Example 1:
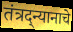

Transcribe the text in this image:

तंत्रद्न्यानाचे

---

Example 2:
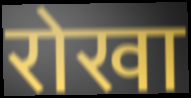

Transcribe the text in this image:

रोखा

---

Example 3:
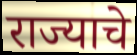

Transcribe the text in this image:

राज्याचे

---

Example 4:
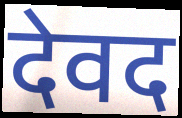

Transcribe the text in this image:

देवद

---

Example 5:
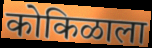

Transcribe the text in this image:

कोकिळाला